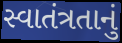
સ્વાતંત્રતાનું